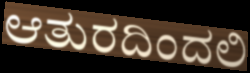
ಆತುರದಿಂದಲಿ